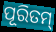
ପୂରିତମ୍